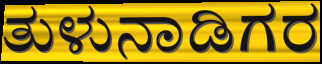
ತುಳುನಾಡಿಗರ